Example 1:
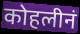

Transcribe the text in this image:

कोहलीनं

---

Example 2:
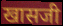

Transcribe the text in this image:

खासजी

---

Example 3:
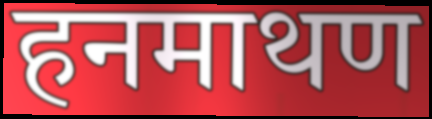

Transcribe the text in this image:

हनमाथण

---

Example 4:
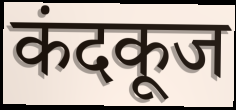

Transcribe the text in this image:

कंदकूज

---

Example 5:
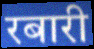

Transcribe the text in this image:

रबारी